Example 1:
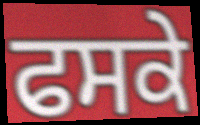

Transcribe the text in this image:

ਫਸਕੇ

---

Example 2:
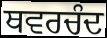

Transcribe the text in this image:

ਥਵਰਚੰਦ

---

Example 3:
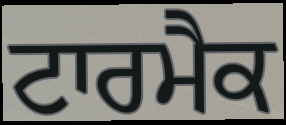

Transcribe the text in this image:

ਟਾਰਮੈਕ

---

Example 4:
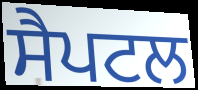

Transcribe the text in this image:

ਸੈਪਟਲ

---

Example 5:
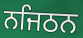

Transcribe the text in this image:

ਨਜਿਠਨ